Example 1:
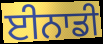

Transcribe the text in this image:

ਈਨਾਡੀ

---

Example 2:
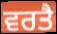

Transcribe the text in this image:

ਵਰਤੈ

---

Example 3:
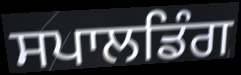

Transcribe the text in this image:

ਸਪਾਲਡਿੰਗ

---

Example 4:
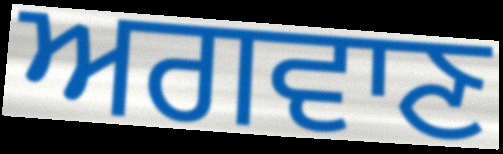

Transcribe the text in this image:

ਅਗਵਾਣ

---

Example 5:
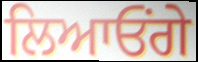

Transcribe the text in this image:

ਲਿਆਓਂਗੇ